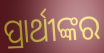
ପ୍ରାର୍ଥୀଙ୍କର